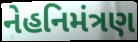
નેહનિમંત્રણ